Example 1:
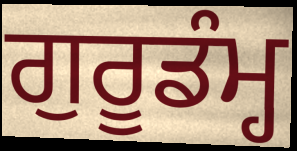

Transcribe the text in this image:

ਗੁਰੂਡੰਮ੍ਹ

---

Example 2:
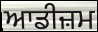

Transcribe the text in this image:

ਆਡੀਜ਼ਮ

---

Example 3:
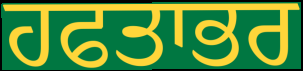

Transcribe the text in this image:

ਹਫਤਾਭਰ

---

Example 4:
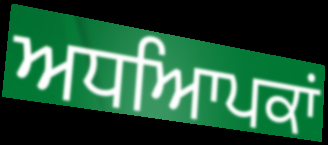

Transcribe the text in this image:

ਅਧਆਿਪਕਾਂ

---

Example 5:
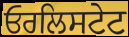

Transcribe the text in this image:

ਓਰਲਿਸਟੇਟ